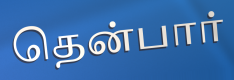
தென்பார்